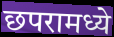
छपरामध्ये